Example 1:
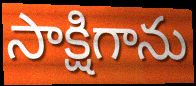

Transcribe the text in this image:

సాక్షిగాను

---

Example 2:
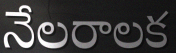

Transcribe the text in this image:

నేలరాలక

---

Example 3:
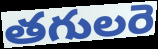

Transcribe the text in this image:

తగులరె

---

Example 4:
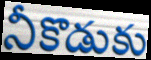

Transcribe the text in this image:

నీకొడుకు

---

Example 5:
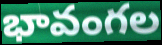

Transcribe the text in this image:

భావంగల